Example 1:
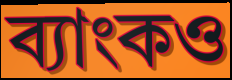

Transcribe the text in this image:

ব্যাংকও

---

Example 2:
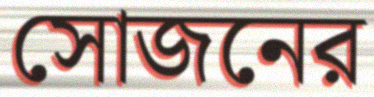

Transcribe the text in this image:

সোজনের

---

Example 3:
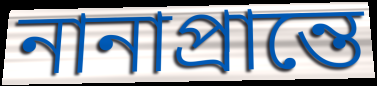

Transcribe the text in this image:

নানাপ্রান্তে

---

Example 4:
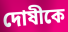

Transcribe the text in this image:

দোষীকে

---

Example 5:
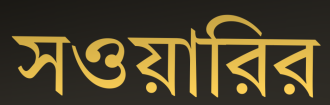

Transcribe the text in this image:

সওয়ারির